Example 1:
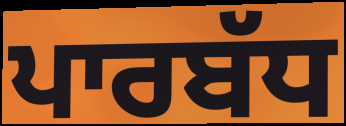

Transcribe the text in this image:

ਪਾਰਬੱਧ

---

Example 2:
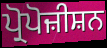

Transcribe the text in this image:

ਪ੍ਰੋਪੋਜ਼ੀਸ਼ਨ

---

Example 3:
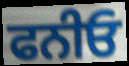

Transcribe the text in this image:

ਫਨੀਓ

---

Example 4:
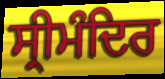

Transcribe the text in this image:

ਸ੍ਰੀਮੰਦਿਰ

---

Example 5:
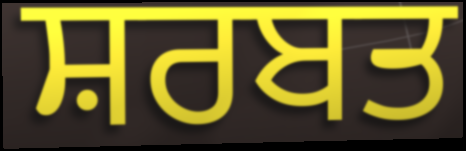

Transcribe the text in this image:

ਸ਼ਰਬਤ